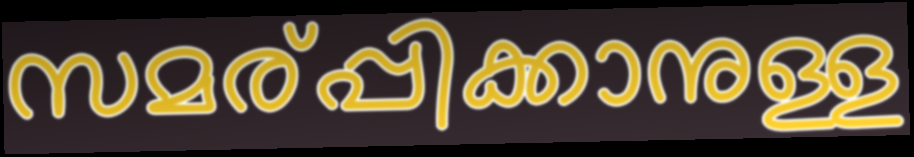
സമര്പ്പിക്കാനുള്ള